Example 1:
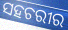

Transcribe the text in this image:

ସହଚରୀର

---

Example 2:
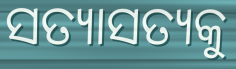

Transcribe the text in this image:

ସତ୍ୟାସତ୍ୟକୁ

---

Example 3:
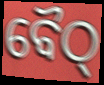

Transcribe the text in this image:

ବୈଠ୍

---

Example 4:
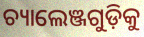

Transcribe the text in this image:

ଚ୍ୟାଲେଞ୍ଜଗୁଡ଼ିକୁ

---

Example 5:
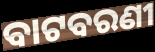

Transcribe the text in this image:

ବାଟବରଣୀ